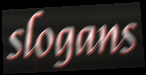
slogans